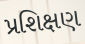
પ્રશિક્ષણ